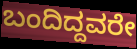
ಬಂದಿದ್ದವರೇ